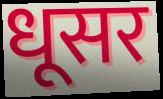
धूसर